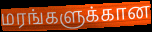
மரங்களுக்கான